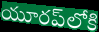
యూరప్‌లోకి